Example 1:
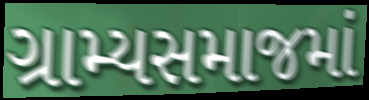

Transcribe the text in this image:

ગ્રામ્યસમાજમાં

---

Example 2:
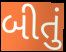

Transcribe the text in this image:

બીતું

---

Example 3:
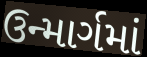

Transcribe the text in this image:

ઉન્માર્ગમાં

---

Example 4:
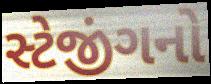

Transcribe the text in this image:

સ્ટેજીંગનો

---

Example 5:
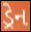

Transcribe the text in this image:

ડ્રેન